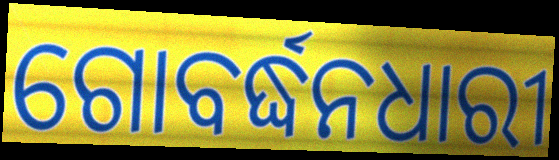
ଗୋବର୍ଦ୍ଧନଧାରୀ